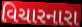
વિચારનારા